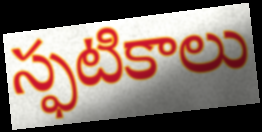
స్ఫటికాలు